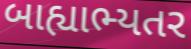
બાહ્યાભ્યતર